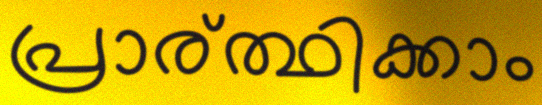
പ്രാര്ത്ഥിക്കാം